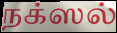
நக்ஸல்